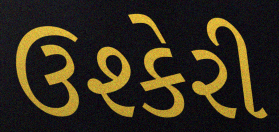
ઉશ્કેરી